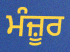
ਮੰਜ਼ੂਰ